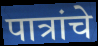
पात्रांचे